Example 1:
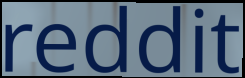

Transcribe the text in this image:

reddit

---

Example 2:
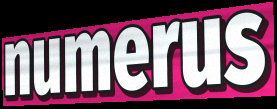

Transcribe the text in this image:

numerus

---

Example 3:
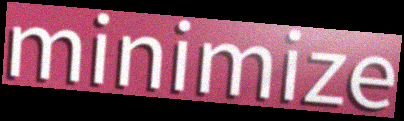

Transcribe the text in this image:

minimize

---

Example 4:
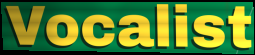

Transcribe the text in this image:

Vocalist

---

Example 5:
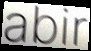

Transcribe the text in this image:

abir